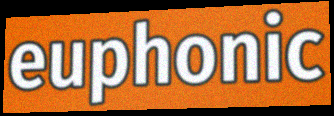
euphonic